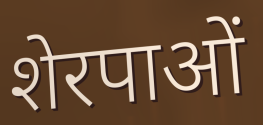
शेरपाओं